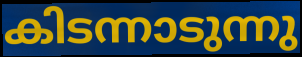
കിടന്നാടുന്നു